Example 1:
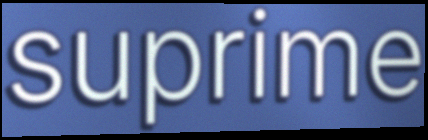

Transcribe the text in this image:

suprime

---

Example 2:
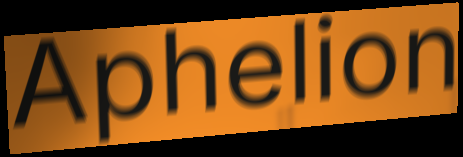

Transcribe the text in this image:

Aphelion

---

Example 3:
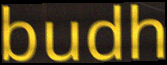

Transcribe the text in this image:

budh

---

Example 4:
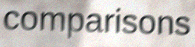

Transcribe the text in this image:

comparisons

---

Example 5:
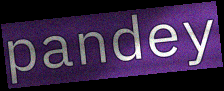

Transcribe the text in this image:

pandey